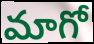
మాగో